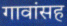
गावांसह